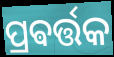
ପ୍ରଵର୍ତ୍ତକ